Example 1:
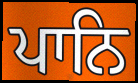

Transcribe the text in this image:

ਪਾਨਿ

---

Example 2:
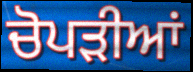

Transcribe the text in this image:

ਚੋਪੜੀਆਂ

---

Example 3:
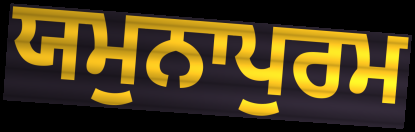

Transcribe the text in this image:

ਯਮੁਨਾਪੁਰਮ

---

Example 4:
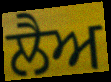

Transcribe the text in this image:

ਲੈਅ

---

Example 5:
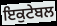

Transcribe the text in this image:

ਇਕੁਟੇਬਲ